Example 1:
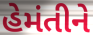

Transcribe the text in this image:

હેમંતીને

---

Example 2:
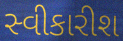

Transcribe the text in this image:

સ્વીકારીશ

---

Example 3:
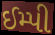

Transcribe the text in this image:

ઈમ્પી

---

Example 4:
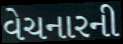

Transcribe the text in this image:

વેચનારની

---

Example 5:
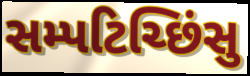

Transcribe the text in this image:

સમ્પટિચ્છિંસુ